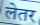
लेतर